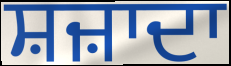
ਸ਼ਜ਼ਾਦਾ